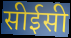
सीईसी